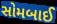
સોમબાઈ